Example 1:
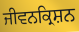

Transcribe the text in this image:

ਜੀਵਨਕ੍ਰਿਸ਼ਨ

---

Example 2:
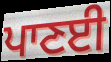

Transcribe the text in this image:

ਪਾਣਈ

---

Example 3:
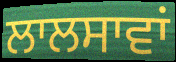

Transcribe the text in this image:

ਲਾਲਸਾਵਾਂ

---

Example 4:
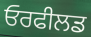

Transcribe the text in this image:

ਓਰਫੀਲਡ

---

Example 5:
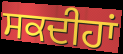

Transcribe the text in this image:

ਸਕਦੀਹਾਂ